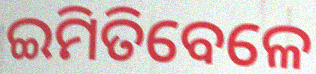
ଇମିତିବେଳେ